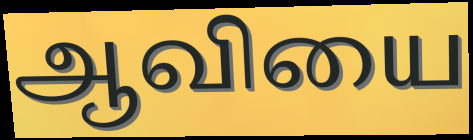
ஆவியை